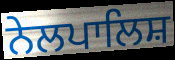
ਨੇਲਪਾਲਿਸ਼